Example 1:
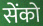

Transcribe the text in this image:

सेंको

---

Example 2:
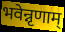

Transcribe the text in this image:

भवेन्नृणाम्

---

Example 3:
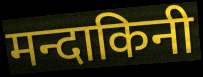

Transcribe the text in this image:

मन्दाकिनी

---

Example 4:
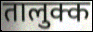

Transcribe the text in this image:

तालुक्क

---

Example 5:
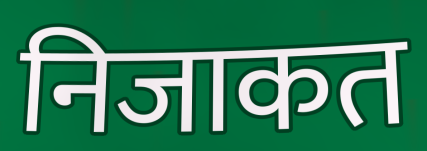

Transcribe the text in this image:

निजाकत